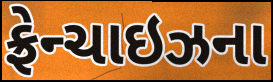
ફ્રેન્ચાઇઝના